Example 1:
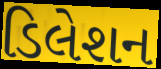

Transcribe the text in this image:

ડિલેશન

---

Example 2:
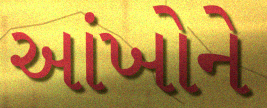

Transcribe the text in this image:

આંખોને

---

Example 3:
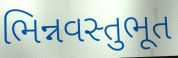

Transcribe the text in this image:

ભિન્નવસ્તુભૂત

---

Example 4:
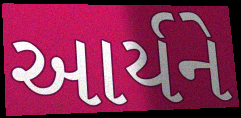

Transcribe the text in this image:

આર્યને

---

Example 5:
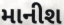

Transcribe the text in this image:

માનીશ